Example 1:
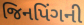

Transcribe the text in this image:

જિનપિંગની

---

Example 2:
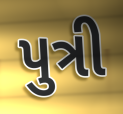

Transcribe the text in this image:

પુત્રી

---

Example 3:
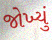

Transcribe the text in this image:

જોખ્યું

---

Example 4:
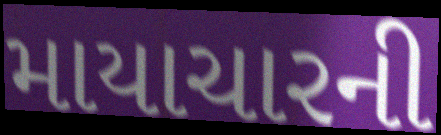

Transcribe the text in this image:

માયાચારની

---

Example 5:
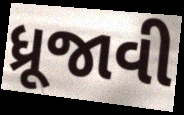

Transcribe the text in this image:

ધ્રૂજાવી